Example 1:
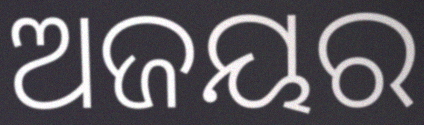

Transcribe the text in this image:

ଅଜୟର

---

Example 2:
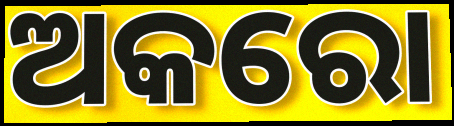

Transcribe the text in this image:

ଅକରୋ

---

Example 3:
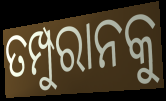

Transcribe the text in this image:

ତମ୍ପୁରାନକୁ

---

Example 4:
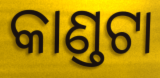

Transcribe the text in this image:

କାଣ୍ଡଟା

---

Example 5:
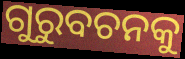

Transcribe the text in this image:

ଗୁରୁବଚନକୁ